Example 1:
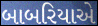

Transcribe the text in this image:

બાબરિયાએ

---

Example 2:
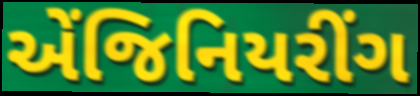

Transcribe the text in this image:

એંજિનિયરીંગ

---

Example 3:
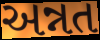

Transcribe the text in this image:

અન્નત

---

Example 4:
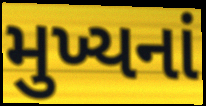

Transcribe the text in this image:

મુખ્યનાં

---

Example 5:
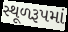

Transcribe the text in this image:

સ્થૂળરૂપમાં